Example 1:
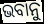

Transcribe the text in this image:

ଭବାନୁ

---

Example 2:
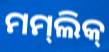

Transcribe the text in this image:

ମମ୍‌ଲିକ୍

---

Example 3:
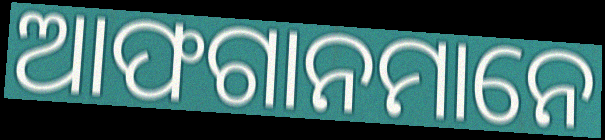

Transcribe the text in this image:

ଆଫଗାନମାନେ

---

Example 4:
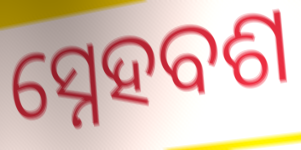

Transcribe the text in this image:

ସ୍ନେହବଶ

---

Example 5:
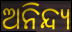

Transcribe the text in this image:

ଅନିନ୍ଦ୍ୟ